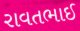
રાવતભાઈ